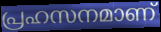
പ്രഹസനമാണ്